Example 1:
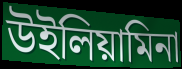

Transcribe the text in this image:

উইলিয়ামিনা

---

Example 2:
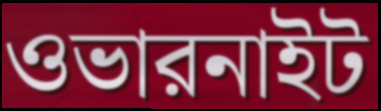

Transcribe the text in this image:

ওভারনাইট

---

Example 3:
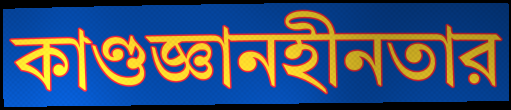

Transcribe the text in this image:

কাণ্ডজ্ঞানহীনতার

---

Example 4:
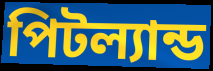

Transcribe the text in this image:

পিটল্যান্ড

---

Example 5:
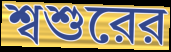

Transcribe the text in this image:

শ্বশুরের